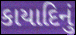
કાયાદિનું